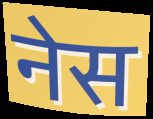
नेस